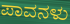
ಪಾವನಳು